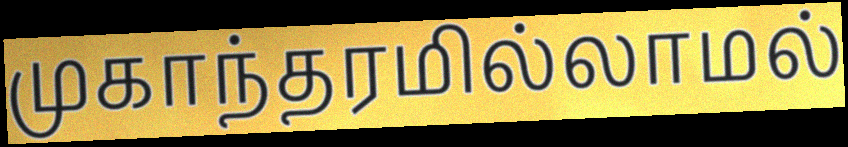
முகாந்தரமில்லாமல்